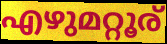
എഴുമറ്റൂര്